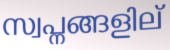
സ്വപ്നങ്ങളില്